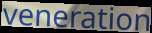
veneration